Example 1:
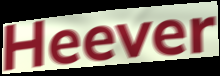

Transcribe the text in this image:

Heever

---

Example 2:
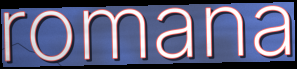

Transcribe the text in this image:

romana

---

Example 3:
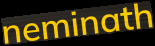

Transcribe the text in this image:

neminath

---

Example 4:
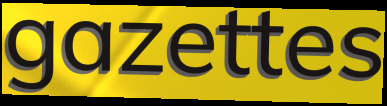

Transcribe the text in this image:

gazettes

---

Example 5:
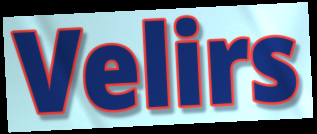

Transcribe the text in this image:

Velirs